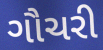
ગૌચરી